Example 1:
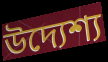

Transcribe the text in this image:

উদ্যেশ্য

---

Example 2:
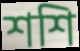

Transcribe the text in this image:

শশি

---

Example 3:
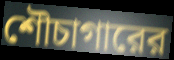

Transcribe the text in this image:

শৌচাগারের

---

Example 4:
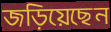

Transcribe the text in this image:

জড়িয়েছেন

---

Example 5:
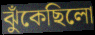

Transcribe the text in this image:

ঝুঁকেছিলো